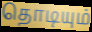
தொடியும்